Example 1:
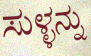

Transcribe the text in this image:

ಸುಳ್ಳನ್ನು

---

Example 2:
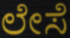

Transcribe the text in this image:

ಲೇಸೆ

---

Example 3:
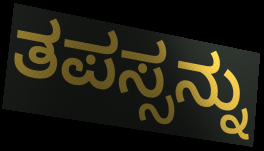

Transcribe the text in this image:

ತಪಸ್ಸನ್ನು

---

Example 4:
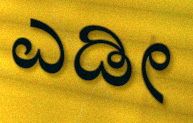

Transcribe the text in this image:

ಎಡೀ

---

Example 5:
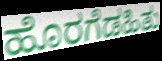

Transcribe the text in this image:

ಹೊರಗೆಡಹಿತು